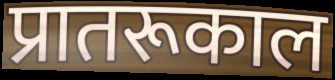
प्रातरूकाल